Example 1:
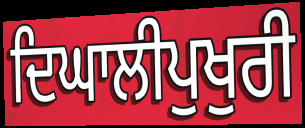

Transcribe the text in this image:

ਦਿਘਾਲੀਪੁਖੁਰੀ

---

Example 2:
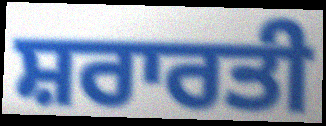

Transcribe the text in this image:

ਸ਼ਰਾਰਤੀ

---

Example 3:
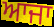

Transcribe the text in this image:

ਆਜਾ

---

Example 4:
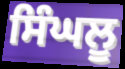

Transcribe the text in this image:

ਸਿੰਘਲੂ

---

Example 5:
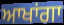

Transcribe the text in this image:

ਆਖਾਂਗਾ